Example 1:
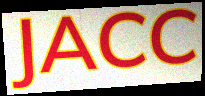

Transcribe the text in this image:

JACC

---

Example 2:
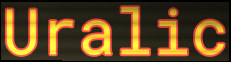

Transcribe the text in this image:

Uralic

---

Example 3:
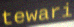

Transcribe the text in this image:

tewari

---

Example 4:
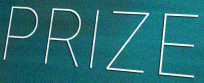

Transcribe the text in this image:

PRIZE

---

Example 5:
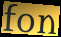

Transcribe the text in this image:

fon